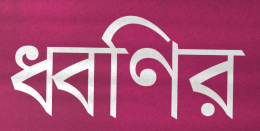
ধ্বণির